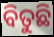
ବିତୁଛି